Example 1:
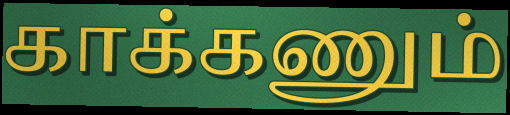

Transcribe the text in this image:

காக்கணும்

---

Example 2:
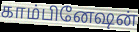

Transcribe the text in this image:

காம்பினேஷன்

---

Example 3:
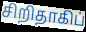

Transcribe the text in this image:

சிறிதாகிப்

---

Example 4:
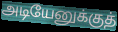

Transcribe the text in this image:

அடியேனுக்குத்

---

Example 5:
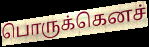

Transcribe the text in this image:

பொருக்கெனச்